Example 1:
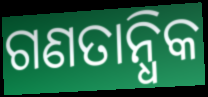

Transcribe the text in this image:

ଗଣତାନ୍ଧିକ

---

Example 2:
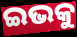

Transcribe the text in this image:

ଇଭକୁ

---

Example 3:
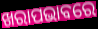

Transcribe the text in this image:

ଖରାପଭାବରେ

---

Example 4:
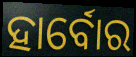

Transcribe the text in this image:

ହାର୍ବୋର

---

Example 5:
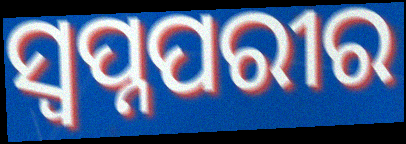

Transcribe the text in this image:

ସ୍ୱପ୍ନପରୀର